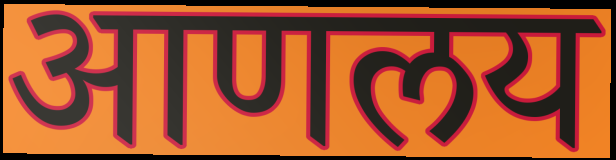
आणलय